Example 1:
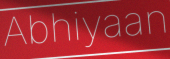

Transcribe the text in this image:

Abhiyaan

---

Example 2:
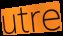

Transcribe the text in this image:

utre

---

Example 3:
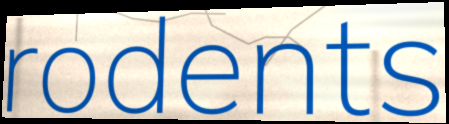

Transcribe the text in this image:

rodents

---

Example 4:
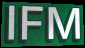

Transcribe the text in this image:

IFM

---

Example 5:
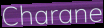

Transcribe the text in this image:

Charane